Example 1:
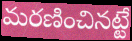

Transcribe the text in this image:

మరణించినట్టే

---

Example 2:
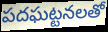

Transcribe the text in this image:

పదఘట్టనలతో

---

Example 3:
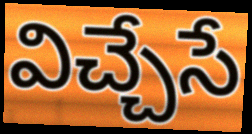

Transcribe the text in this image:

విచ్చేసే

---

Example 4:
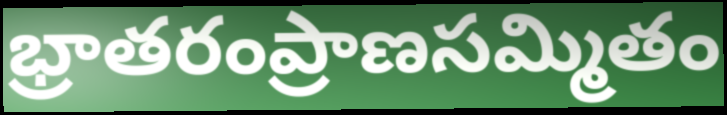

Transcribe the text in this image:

భ్రాతరంప్రాణసమ్మితం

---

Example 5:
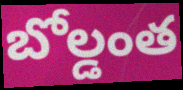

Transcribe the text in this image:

బోల్డంత